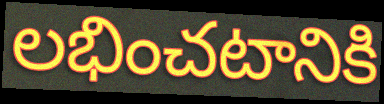
లభించటానికి